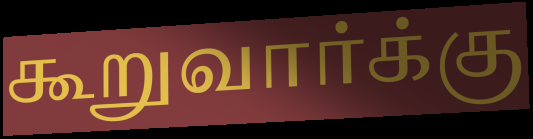
கூறுவார்க்கு